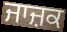
ਜਾਜ਼ਕ